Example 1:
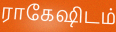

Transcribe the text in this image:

ராகேஷிடம்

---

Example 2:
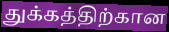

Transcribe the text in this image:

துக்கத்திற்கான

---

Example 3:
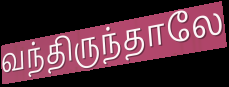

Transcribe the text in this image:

வந்திருந்தாலே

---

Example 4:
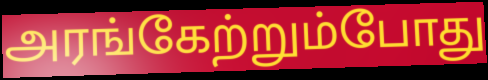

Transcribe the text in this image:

அரங்கேற்றும்போது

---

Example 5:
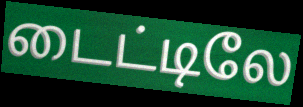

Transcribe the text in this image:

டைட்டிலே